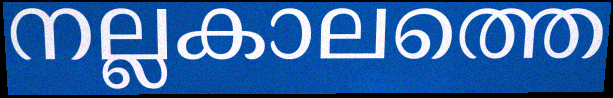
നല്ലകാലത്തെ